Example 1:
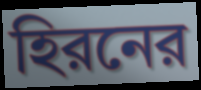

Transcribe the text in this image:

হিরনের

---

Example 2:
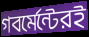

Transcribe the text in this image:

গবর্মেন্টেরই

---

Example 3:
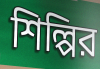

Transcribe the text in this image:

শিল্পির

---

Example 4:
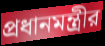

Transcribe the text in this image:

প্রধানমন্ত্রীর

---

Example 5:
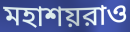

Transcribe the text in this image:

মহাশয়রাও